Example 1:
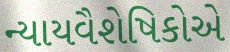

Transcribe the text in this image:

ન્યાયવૈશેષિકોએ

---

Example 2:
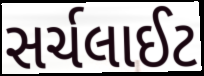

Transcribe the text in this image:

સર્ચલાઈટ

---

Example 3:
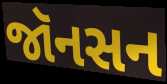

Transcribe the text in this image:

જૉનસન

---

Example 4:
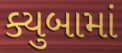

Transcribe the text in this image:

ક્યુબામાં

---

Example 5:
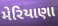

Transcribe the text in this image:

મેરિયાણા